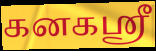
கனகஸ்ரீ